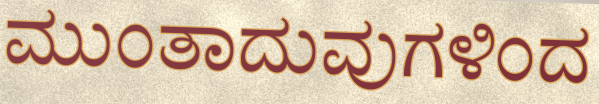
ಮುಂತಾದುವುಗಳಿಂದ